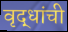
वृद्धांची